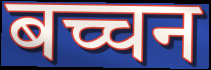
बच्‍चन